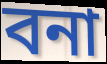
বনা